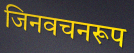
जिनवचनरूप